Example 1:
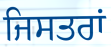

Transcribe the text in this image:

ਜਿਸਤਰਾਂ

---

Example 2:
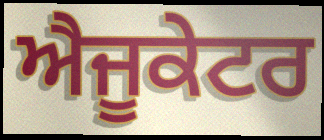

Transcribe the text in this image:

ਐਜੂਕੇਟਰ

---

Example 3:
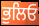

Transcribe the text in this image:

ਭੁਲਿਓ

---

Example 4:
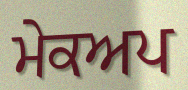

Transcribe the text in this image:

ਮੇਕਅਪ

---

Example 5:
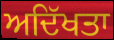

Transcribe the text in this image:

ਅਦਿੱਖਤਾ